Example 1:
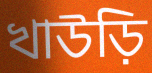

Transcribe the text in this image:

খাউড়ি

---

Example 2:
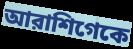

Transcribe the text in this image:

আরাশিগেকে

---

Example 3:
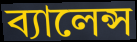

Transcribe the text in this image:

ব্যালেন্স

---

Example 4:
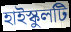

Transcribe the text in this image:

হাইস্কুলটি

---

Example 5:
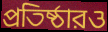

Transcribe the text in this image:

প্রতিষ্ঠারও